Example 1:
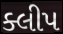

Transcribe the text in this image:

ક્લીપ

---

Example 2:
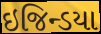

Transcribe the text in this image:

ઇજિન્ડયા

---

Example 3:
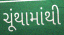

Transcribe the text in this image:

ચૂંથામાંથી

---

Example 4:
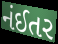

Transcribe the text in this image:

નંઈતર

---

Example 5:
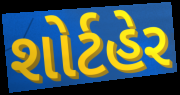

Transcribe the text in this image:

શોર્ટહેર